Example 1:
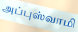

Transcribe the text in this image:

அப்புஸ்வாமி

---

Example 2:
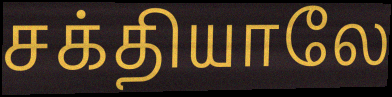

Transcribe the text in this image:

சக்தியாலே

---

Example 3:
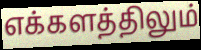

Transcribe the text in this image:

எக்களத்திலும்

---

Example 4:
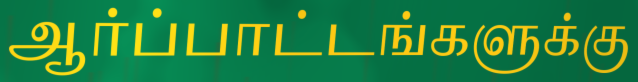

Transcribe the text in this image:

ஆர்ப்பாட்டங்களுக்கு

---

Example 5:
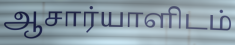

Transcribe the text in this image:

ஆசார்யாளிடம்